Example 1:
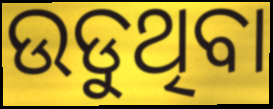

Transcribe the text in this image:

ଉଡୁଥିବା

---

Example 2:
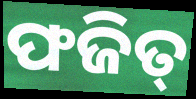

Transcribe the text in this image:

ଫଜିତ୍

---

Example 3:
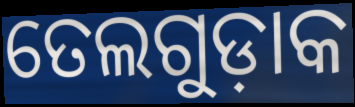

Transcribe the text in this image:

ତେଲଗୁଡ଼ାକ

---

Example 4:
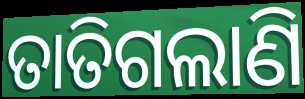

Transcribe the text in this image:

ତାତିଗଲାଣି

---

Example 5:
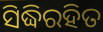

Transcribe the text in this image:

ସିଦ୍ଧିରହିତ